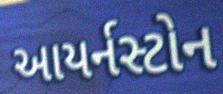
આયર્નસ્ટોન